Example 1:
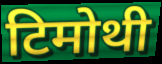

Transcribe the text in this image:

टिमोथी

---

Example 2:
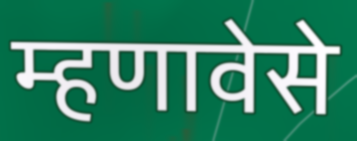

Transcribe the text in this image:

म्हणावेसे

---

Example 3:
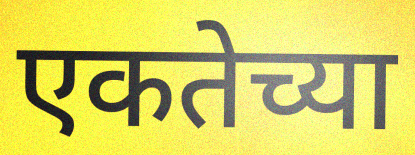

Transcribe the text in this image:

एकतेच्या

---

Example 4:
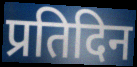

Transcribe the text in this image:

प्रतिदिन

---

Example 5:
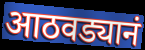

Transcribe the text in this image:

आठवड्यानं